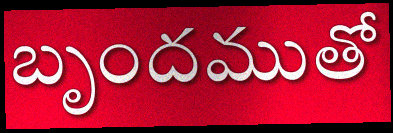
బృందముతో